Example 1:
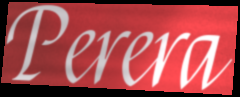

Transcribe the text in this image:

Perera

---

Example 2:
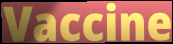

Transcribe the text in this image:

Vaccine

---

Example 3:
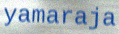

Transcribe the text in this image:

yamaraja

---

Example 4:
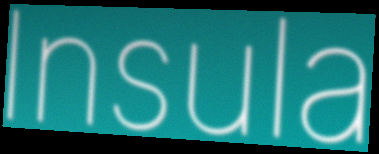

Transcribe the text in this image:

Insula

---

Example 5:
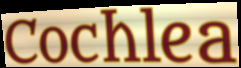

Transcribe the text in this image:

Cochlea